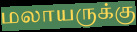
மலாயருக்கு